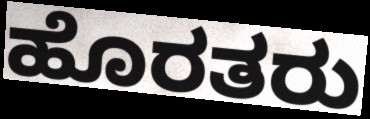
ಹೊರತರು